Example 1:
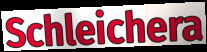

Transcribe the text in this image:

Schleichera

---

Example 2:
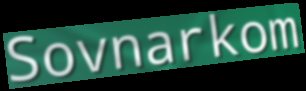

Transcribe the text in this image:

Sovnarkom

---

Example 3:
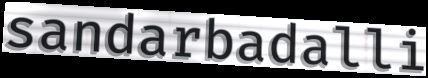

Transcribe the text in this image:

sandarbadalli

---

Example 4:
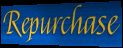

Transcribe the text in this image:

Repurchase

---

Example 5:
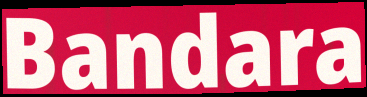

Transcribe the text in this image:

Bandara